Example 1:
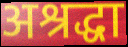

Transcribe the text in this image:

अश्रद्धा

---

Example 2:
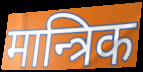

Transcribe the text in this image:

मान्त्रिक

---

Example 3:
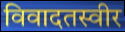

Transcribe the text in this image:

विवादतस्वीर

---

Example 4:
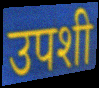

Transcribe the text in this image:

उपशी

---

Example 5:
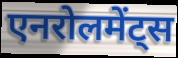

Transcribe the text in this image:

एनरोलमेंट्स